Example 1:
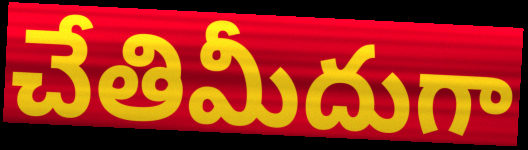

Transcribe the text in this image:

చేతిమీదుగా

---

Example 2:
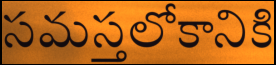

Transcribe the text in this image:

సమస్తలోకానికి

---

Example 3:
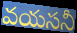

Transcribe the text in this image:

వయసనీ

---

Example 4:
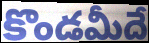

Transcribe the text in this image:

కొండమీదే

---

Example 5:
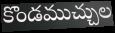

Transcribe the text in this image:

కొండముచ్చుల